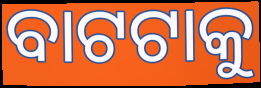
ବାଟଟାକୁ